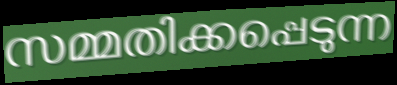
സമ്മതിക്കപ്പെടുന്ന